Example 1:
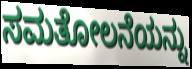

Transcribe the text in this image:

ಸಮತೋಲನೆಯನ್ನು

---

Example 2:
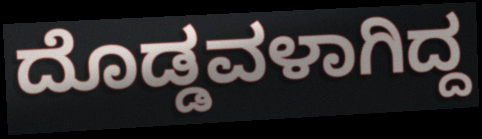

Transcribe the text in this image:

ದೊಡ್ಡವಳಾಗಿದ್ದ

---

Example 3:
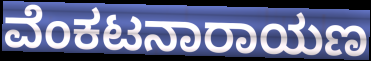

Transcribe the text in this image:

ವೆಂಕಟನಾರಾಯಣ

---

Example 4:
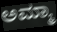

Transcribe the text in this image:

ಅಮ್ಮಾ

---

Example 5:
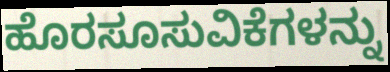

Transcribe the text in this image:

ಹೊರಸೂಸುವಿಕೆಗಳನ್ನು